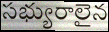
సభ్యురాలైన